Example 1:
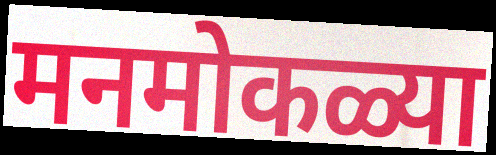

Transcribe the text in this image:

मनमोकळ्या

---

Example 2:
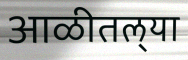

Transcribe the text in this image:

आळीतल्या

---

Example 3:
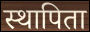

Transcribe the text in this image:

स्थापिता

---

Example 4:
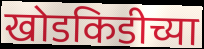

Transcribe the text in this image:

खोडकिडीच्या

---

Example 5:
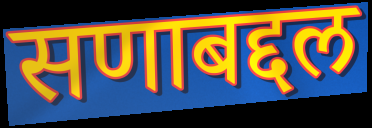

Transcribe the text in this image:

सणाबद्दल